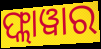
ଫ୍ଲାୱାର